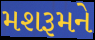
મશરૂમને